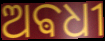
ଅଵଧୀ